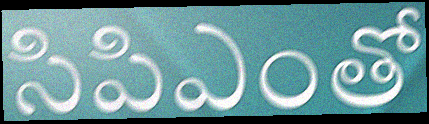
సిపిఎంతో